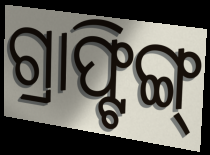
ଗ୍ରାଫ୍ଟିଙ୍ଗ୍